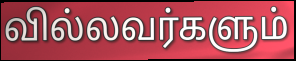
வில்லவர்களும்